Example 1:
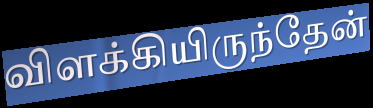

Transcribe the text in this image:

விளக்கியிருந்தேன்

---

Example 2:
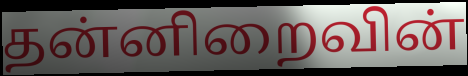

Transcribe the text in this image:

தன்னிறைவின்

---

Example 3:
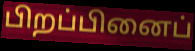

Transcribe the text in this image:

பிறப்பினைப்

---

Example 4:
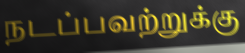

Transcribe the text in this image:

நடப்பவற்றுக்கு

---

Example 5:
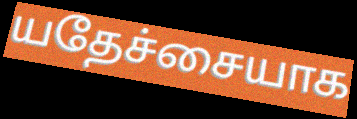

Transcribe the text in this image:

யதேச்சையாக